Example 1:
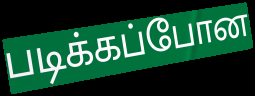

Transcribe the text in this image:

படிக்கப்போன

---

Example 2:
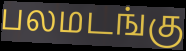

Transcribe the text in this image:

பலமடங்கு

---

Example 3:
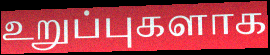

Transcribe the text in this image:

உறுப்புகளாக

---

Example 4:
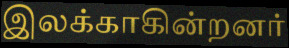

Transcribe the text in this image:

இலக்காகின்றனர்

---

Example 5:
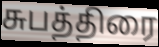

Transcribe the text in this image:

சுபத்திரை